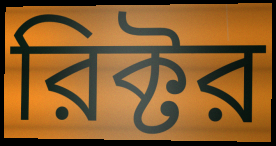
রিক্টর